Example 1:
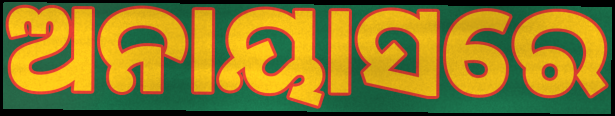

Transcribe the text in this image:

ଅନାୟାସରେ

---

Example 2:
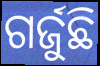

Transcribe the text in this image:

ଗର୍ଜୁଛି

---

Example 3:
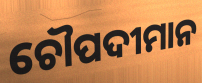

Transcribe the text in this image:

ଚୌପଦୀମାନ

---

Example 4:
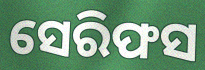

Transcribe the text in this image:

ସେରିଫସ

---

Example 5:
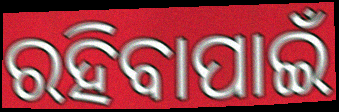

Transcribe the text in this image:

ରହିବାପାଇଁ